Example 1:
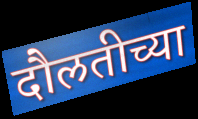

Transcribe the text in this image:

दौलतीच्या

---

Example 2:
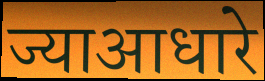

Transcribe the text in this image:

ज्याआधारे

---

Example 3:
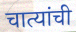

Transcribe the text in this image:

चात्यांची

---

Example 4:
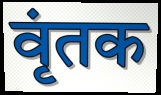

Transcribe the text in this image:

वृंतक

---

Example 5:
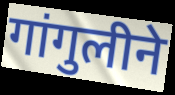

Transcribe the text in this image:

गांगुलीने